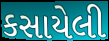
કસાયેલી